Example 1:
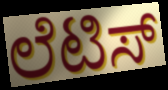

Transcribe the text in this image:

ಲೆಟಿಸ್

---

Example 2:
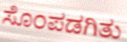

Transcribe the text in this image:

ಸೊಂಪಡಗಿತು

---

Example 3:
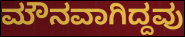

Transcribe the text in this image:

ಮೌನವಾಗಿದ್ದವು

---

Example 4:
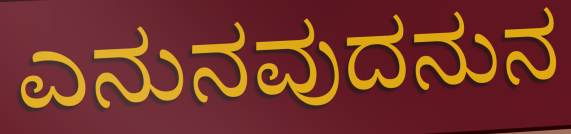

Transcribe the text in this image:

ಎನುನವುದನುನ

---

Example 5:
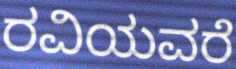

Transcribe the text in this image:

ರವಿಯವರೆ